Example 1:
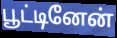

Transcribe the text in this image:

பூட்டினேன்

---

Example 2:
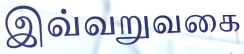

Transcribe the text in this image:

இவ்வறுவகை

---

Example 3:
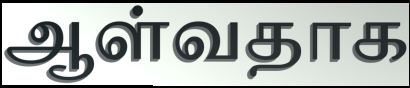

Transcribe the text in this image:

ஆள்வதாக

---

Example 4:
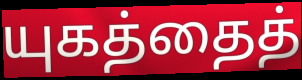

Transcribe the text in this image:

யுகத்தைத்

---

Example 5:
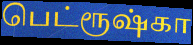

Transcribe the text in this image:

பெட்ரூஷ்கா